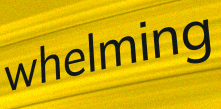
whelming